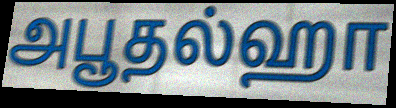
அபூதல்ஹா